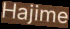
Hajime